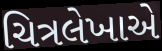
ચિત્રલેખાએ